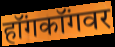
हॉंगकॉंगवर